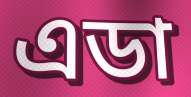
এডা